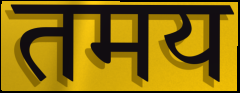
तमय